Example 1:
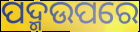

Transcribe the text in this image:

ପଦ୍ମଉପରେ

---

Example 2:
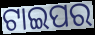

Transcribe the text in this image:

ଟାଇପର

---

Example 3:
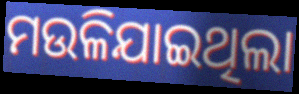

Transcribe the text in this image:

ମଉଳିଯାଇଥିଲା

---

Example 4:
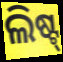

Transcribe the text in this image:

ଲିଷ୍ଟ୍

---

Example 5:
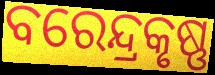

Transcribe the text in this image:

ବରେନ୍ଦ୍ରକୃଷ୍ଣ